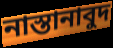
নাস্তানাবুদ